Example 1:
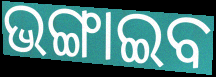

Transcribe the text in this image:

ଭଙ୍ଗାଇବ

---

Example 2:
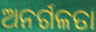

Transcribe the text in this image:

ଅନର୍ଗଳତା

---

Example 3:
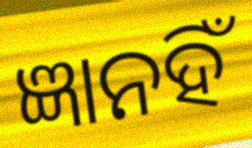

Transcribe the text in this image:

ଜ୍ଞାନହିଁ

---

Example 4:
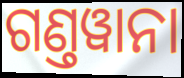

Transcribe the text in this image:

ଗଣ୍ତୱାନା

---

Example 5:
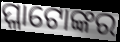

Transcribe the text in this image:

ପ୍ଳାଟୋଙ୍କର